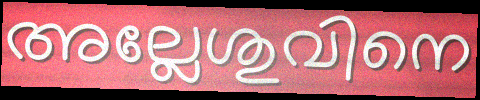
അല്ലേശുവിനെ